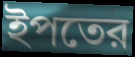
ইপতের